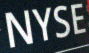
NYSE